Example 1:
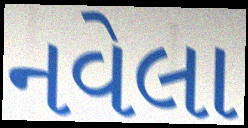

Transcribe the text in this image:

નવેલા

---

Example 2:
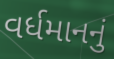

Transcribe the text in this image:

વર્ધમાનનું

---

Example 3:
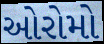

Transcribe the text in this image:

ઓરોમો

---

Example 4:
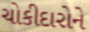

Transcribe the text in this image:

ચોકીદારોને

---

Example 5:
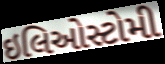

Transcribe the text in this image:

ઇલિઓસ્ટોમી